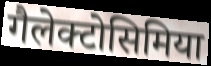
गैलेक्टोसिमिया